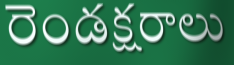
రెండక్షరాలు